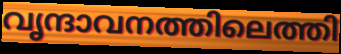
വൃന്ദാവനത്തിലെത്തി